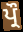
ਪ੍ਰੌ